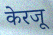
केरजू